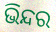
ଭିନ୍ଦର